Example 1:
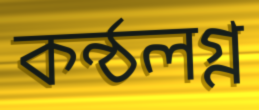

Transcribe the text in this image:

কন্ঠলগ্ন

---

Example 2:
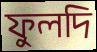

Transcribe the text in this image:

ফুলদি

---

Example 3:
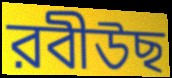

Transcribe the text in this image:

রবীউছ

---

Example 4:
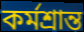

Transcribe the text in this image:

কর্মশ্রান্ত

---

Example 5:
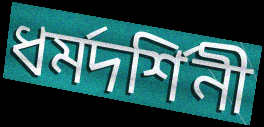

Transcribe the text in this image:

ধর্মদর্শিনী